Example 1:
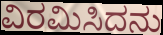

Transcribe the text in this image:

ವಿರಮಿಸಿದನು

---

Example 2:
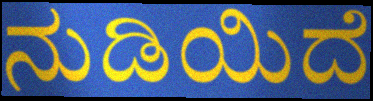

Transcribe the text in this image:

ನುಡಿಯಿದೆ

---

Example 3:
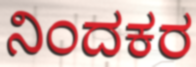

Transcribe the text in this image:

ನಿಂದಕರ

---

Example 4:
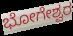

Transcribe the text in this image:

ಭೋಗೇಶ್ವರ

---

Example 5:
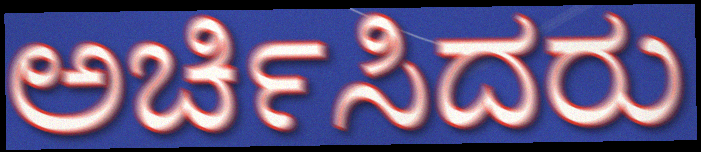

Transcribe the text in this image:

ಅರ್ಚಿಸಿದರು